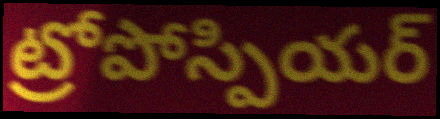
ట్రోపోస్పియర్